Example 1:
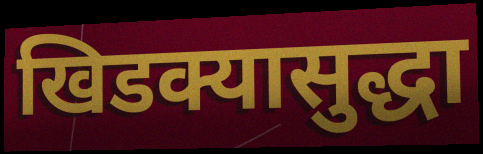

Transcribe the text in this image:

खिडक्यासुद्धा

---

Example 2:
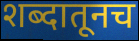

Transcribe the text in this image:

शब्दातूनच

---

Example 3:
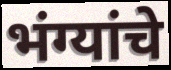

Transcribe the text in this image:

भंग्यांचे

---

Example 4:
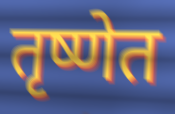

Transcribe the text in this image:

तृष्णेत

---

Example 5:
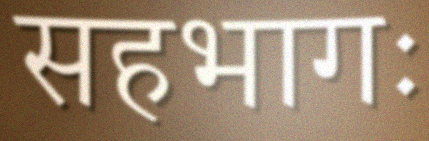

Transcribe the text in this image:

सहभागः